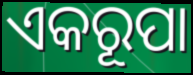
ଏକରୂପା